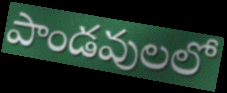
పాండవులలో